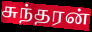
சுந்தரன்